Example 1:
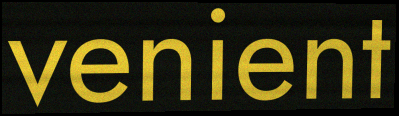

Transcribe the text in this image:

venient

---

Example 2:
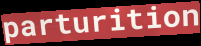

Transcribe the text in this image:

parturition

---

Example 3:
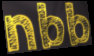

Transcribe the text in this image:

nbb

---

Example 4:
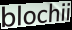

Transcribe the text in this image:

blochii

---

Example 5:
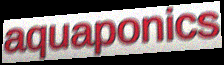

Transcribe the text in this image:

aquaponics